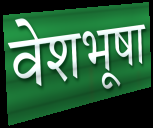
वेशभूषा